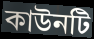
কাউনটি